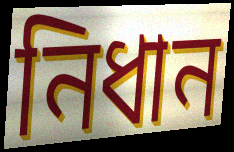
নিধান